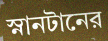
স্নানটানের